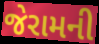
જેરામની